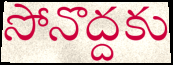
సోనొద్దకు